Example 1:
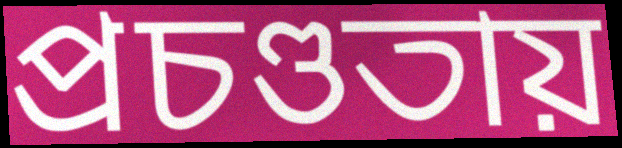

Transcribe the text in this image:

প্রচণ্ডতায়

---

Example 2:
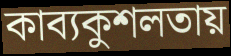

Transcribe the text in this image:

কাব্যকুশলতায়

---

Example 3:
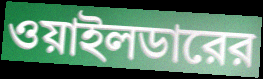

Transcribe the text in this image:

ওয়াইলডারের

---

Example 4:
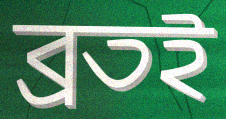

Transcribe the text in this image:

ব্রতই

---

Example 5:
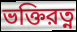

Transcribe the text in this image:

ভক্তিরত্ন